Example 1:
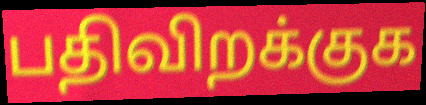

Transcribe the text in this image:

பதிவிறக்குக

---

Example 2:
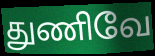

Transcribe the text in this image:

துணிவே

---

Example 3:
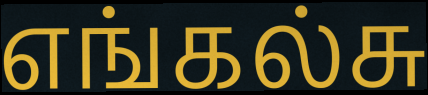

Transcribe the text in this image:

எங்கல்சு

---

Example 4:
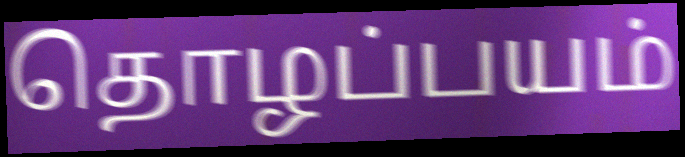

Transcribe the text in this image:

தொழப்பயம்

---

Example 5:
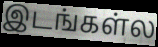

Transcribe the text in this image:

இடங்கள்ல